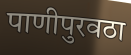
पाणीपुरवठा